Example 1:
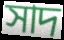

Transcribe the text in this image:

সাদ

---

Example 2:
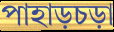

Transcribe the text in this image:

পাহাড়চড়া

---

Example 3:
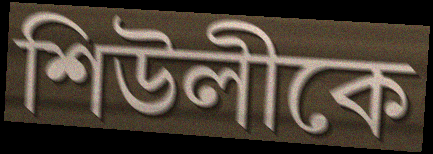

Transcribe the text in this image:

শিউলীকে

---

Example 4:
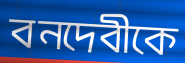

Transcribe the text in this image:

বনদেবীকে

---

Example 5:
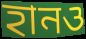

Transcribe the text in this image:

হানও